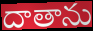
దాతాను